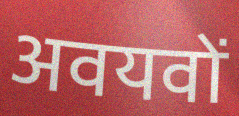
अवयवों